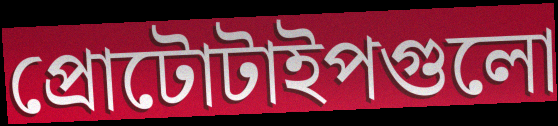
প্রোটোটাইপগুলো